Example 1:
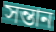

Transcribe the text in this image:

সন্তান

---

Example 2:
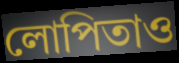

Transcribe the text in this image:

লোপিতাও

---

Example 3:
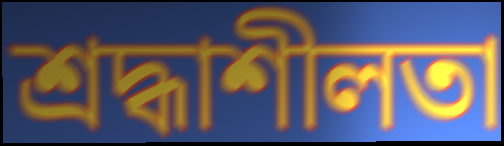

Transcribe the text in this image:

শ্রদ্ধাশীলতা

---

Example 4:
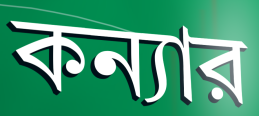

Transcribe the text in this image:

কন্যার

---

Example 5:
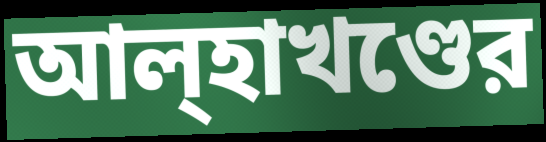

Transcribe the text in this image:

আল্হাখণ্ডের